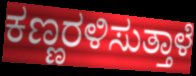
ಕಣ್ಣರಳಿಸುತ್ತಾಳೆ